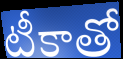
టీకాతో